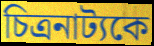
চিত্রনাট্যকে